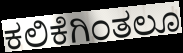
ಕಲಿಕೆಗಿಂತಲೂ